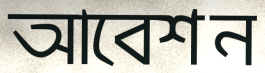
আবেশন